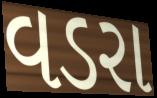
વડરા